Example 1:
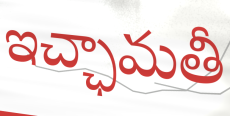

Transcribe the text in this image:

ఇచ్ఛామతీ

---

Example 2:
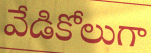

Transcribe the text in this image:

వేడికోలుగా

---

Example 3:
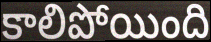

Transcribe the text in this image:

కాలిపోయింది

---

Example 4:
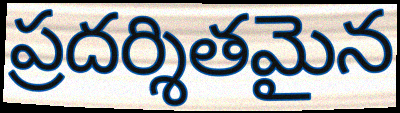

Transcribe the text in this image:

ప్రదర్శితమైన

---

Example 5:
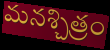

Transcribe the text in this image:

మనశ్చిత్రం